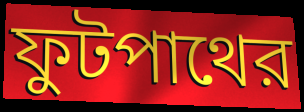
ফুটপাথের